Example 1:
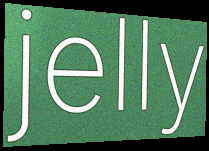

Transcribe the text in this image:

jelly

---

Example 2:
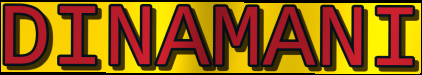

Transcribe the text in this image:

DINAMANI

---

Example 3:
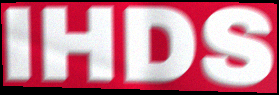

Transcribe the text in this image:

IHDS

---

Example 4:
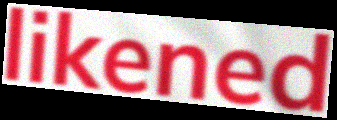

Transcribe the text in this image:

likened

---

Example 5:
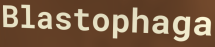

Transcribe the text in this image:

Blastophaga